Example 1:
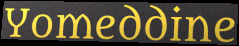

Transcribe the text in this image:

Yomeddine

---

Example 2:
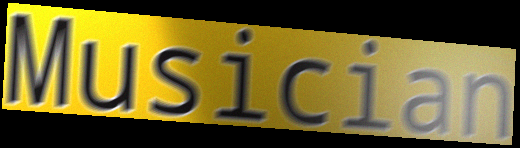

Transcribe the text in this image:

Musician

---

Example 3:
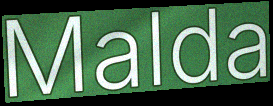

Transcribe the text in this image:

Malda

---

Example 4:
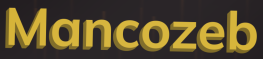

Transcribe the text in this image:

Mancozeb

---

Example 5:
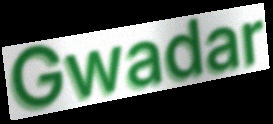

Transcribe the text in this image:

Gwadar